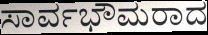
ಸಾರ್ವಭೌಮರಾದ